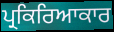
ਪ੍ਰਕਿਰਿਆਕਾਰ